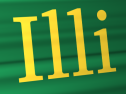
Illi